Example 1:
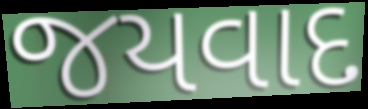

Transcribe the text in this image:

જયવાદ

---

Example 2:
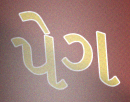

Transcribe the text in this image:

પેગ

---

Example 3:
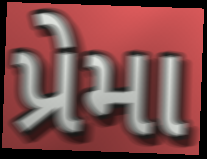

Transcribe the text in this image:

પ્રેમા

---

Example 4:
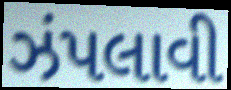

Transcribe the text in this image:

ઝંપલાવી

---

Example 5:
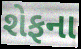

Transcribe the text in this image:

શેફના